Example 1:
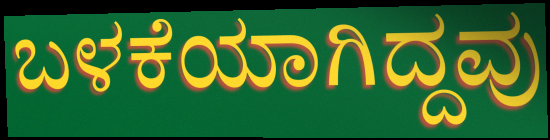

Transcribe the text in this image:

ಬಳಕೆಯಾಗಿದ್ದವು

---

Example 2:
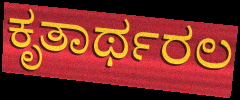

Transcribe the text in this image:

ಕೃತಾರ್ಥರಲ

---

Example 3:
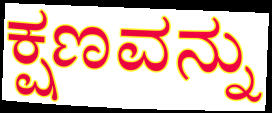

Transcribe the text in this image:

ಕ್ಷಣವನ್ನು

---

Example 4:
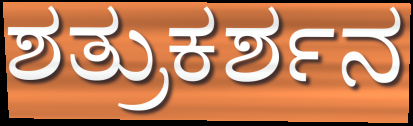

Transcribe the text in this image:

ಶತ್ರುಕರ್ಶನ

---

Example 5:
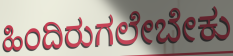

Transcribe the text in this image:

ಹಿಂದಿರುಗಲೇಬೇಕು